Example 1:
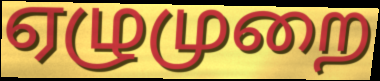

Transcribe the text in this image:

ஏழுமுறை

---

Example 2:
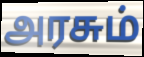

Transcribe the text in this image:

அரசும்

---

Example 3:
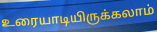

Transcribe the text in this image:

உரையாடியிருக்கலாம்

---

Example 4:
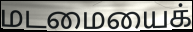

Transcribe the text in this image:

மடமையைக்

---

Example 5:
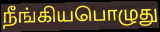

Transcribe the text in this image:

நீங்கியபொழுது